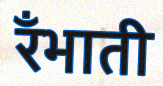
रँभाती